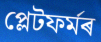
প্লেটফৰ্মৰ